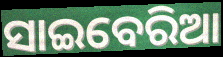
ସାଇବେରିଆ